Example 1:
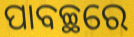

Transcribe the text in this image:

ପାବଚ୍ଛରେ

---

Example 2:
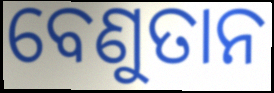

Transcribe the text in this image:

ବେଣୁତାନ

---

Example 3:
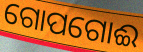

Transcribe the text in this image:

ଗୋପଗୋଈ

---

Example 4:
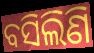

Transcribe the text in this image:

ବସିଲିଣି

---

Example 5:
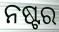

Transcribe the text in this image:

ନଷ୍ଟର